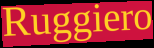
Ruggiero